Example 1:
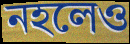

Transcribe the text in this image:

নহলেও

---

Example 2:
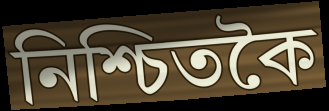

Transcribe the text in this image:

নিশ্চিতকৈ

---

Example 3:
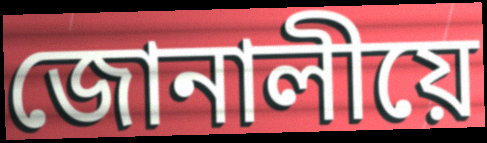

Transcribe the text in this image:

জোনালীয়ে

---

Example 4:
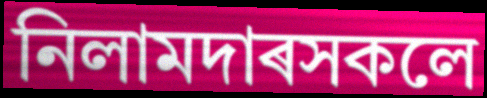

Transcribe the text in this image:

নিলামদাৰসকলে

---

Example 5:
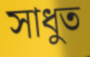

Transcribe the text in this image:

সাধুত